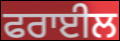
ਫਰਾਈਲ